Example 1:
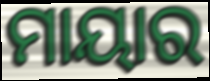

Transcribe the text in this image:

ମାୟାର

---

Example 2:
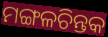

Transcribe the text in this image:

ମଙ୍ଗଳଚିନ୍ତକ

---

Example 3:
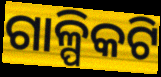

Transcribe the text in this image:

ଗାଳ୍ପିକଟି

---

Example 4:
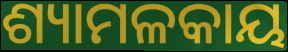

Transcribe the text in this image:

ଶ୍ୟାମଳକାୟ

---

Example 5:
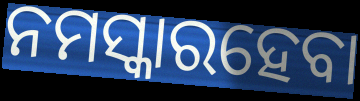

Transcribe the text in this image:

ନମସ୍କାରହେବା